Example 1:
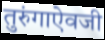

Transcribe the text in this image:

तुरुंगाऐवजी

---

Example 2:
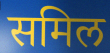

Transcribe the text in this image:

समिल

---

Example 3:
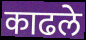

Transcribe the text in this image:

काढले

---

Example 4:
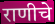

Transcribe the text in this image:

राणीचे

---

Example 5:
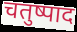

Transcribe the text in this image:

चतुष्पाद